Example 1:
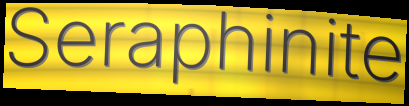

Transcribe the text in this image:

Seraphinite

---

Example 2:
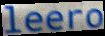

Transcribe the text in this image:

leero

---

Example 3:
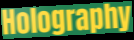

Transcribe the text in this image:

Holography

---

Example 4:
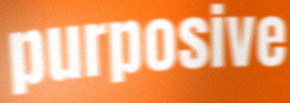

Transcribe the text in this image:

purposive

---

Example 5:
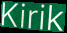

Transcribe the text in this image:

Kirik